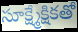
సూక్ష్మేక్షికతో